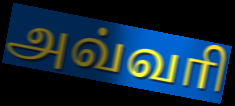
அவ்வரி